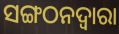
ସଙ୍ଗଠନଦ୍ୱାରା